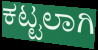
ಕಟ್ಟಲಾಗಿ